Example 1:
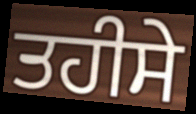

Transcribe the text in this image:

ਤਹੀਸੇ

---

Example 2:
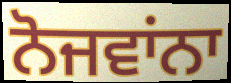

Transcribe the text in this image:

ਨੋਜਵਾਂਨਾ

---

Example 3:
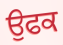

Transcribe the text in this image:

ਉਫਕ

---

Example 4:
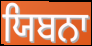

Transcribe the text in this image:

ਯਿਬਨਾ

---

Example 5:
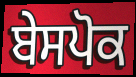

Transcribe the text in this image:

ਬੇਸਪੋਕ